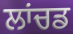
ਲਾਂਚਡ